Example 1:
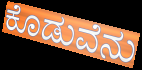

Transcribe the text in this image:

ಕೊಡುವೆನು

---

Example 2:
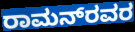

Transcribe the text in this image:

ರಾಮನ್‌ರವರ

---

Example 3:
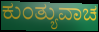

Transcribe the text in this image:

ಕುಂತ್ಯುವಾಚ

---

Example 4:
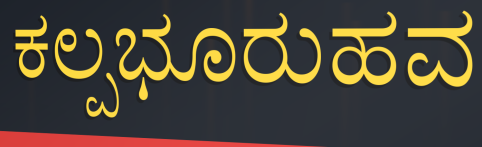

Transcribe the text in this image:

ಕಲ್ಪಭೂರುಹವ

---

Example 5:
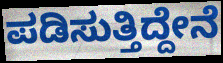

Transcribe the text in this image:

ಪಡಿಸುತ್ತಿದ್ದೇನೆ